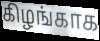
கிழங்காக